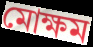
মোক্ষম